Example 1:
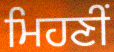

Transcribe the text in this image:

ਮਿਹਣੀਂ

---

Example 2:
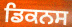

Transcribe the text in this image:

ਡਿਕਨਸ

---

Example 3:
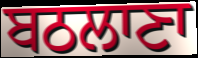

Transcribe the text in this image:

ਬਠਲਾਣਾ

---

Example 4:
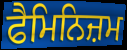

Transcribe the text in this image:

ਫੈਮਿਨਿਜ਼ਮ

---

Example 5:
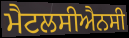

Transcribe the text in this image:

ਮੈਟਲਸੀਐਨਸੀ